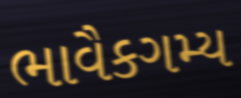
ભાવૈકગમ્ય